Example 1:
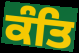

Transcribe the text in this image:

ਕੰਤਿ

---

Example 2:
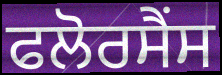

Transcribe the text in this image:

ਫਲੋਰਸੈਂਸ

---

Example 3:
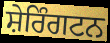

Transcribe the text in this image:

ਸ਼ੇਰਿੰਗਟਨ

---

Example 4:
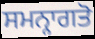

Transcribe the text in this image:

ਸਮਨ੍ਨਾਗਤੋ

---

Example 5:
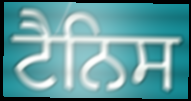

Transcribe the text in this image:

ਟੈਨਿਸ